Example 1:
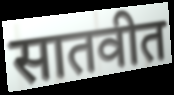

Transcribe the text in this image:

सातवीत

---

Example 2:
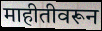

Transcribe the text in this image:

माहीतीवरून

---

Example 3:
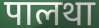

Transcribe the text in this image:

पालथा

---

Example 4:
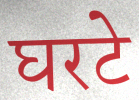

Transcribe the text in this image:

घरटे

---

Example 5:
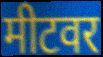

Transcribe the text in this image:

मीटवर